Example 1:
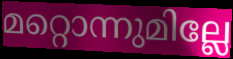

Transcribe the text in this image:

മറ്റൊന്നുമില്ലേ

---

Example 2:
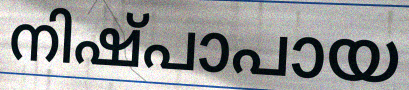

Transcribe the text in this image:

നിഷ്പാപായ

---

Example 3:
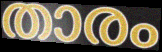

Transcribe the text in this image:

താരം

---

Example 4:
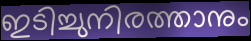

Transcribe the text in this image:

ഇടിച്ചുനിരത്താനും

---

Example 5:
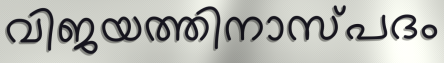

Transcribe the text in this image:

വിജയത്തിനാസ്പദം